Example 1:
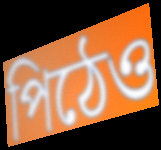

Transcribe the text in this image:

পিঠেও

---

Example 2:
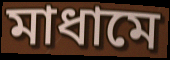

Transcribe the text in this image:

মাধামে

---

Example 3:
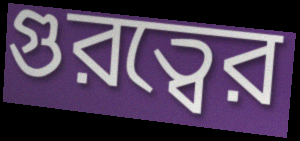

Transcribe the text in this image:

গুরত্বের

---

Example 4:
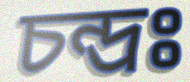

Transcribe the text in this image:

চন্দ্রঃ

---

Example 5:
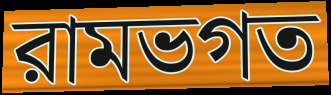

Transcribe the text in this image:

রামভগত